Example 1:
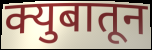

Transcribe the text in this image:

क्युबातून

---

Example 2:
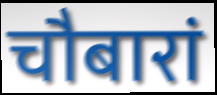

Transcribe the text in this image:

चौबारां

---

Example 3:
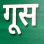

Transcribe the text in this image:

गूस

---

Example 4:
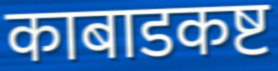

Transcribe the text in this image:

काबाडकष्ट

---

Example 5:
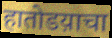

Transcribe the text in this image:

हातोडय़ाचा